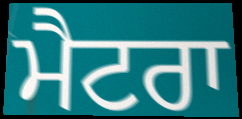
ਮੈਟਰਾ